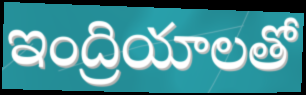
ఇంద్రియాలతో